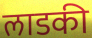
लाडकी